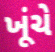
ખૂંચે